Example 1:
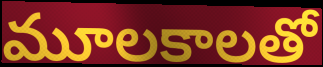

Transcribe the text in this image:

మూలకాలతో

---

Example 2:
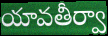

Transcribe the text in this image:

యావతీర్వా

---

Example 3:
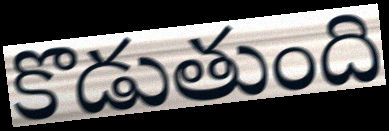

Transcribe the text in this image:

కొడుతుంది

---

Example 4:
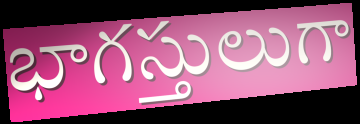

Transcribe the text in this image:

భాగస్తులుగా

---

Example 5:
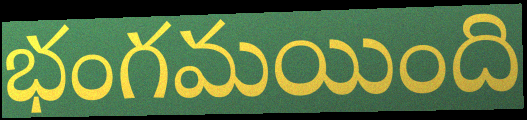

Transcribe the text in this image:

భంగమయింది